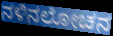
ನಳಿನಲೋಚನ